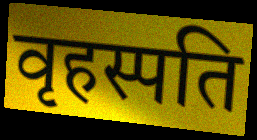
वृहस्पति